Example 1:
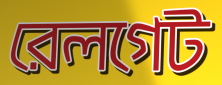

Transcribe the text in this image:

রেলগেট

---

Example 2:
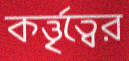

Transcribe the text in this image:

কর্ত্তৃত্বের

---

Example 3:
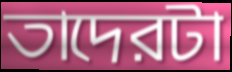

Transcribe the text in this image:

তাদেরটা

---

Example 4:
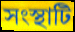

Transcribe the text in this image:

সংস্থাটি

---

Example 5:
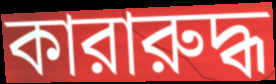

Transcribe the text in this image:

কারারুদ্ধ